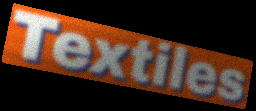
Textiles